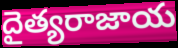
దైత్యరాజాయ